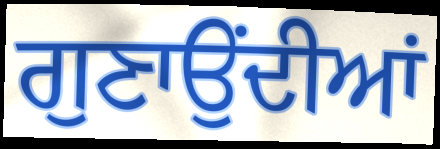
ਗੁਣਾਉਂਦੀਆਂ